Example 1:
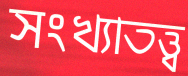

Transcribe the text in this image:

সংখ্যাতত্ত্ব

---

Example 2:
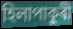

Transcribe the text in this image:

হিলাপাকুৰী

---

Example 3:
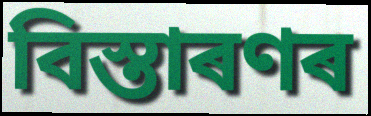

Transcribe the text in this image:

বিস্তাৰণৰ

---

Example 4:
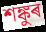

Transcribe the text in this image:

শঙ্কুৰ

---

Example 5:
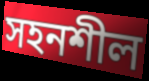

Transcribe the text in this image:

সহনশীল